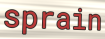
sprain